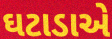
ઘટાડાએ